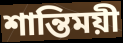
শান্তিময়ী